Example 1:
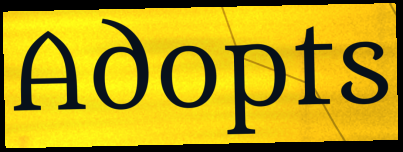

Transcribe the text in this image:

Adopts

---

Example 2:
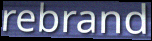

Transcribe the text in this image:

rebrand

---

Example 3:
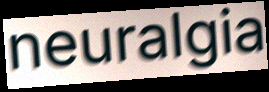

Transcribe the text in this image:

neuralgia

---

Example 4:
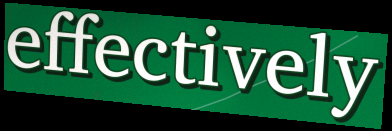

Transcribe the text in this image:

effectively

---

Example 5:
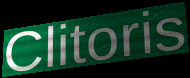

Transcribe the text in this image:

Clitoris